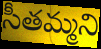
సీతమ్మని